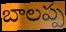
బాలప్ప